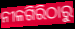
ନୀଳଗିରିଠାରୁ